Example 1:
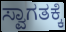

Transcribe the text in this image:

ಸ್ವಾಗತಕ್ಕೆ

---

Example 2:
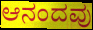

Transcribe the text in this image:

ಆನಂದವು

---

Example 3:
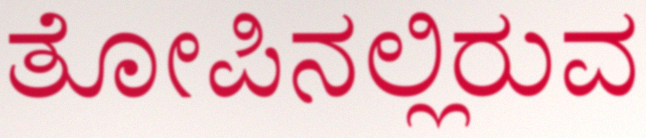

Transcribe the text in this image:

ತೋಪಿನಲ್ಲಿರುವ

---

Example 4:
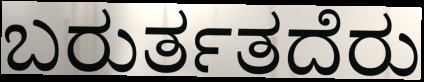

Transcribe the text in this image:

ಬರುರ್ತತದೆರು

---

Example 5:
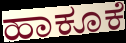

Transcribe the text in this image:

ಹಾಕೂಕೆ